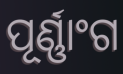
ପୂର୍ଣ୍ଣାଂଗ